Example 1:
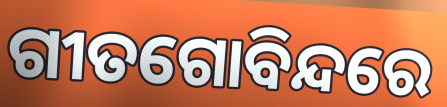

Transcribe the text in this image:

ଗୀତଗୋବିନ୍ଦରେ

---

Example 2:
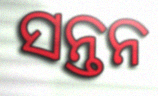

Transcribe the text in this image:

ସନ୍ତନ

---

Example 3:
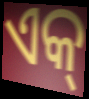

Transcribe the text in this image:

ଏକ୍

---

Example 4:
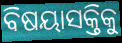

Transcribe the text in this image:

ବିଷୟାସକ୍ତିକୁ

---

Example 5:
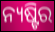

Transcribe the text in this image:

ନ୍ୟଷ୍ଟିର